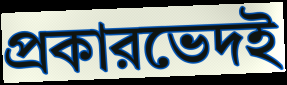
প্রকারভেদই